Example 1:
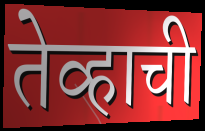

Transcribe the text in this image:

तेव्हाची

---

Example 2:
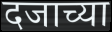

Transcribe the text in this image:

दजाच्या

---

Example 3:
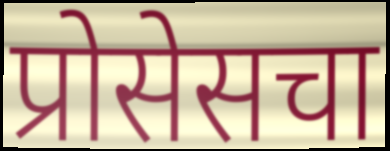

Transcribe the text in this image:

प्रोसेसचा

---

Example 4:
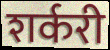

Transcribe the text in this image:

शर्करी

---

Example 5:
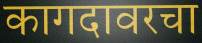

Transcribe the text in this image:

कागदावरचा